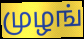
முழங்